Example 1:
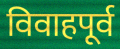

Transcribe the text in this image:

विवाहपूर्व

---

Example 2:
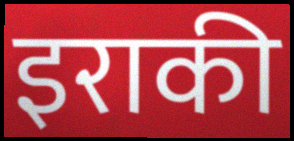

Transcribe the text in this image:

इराकी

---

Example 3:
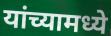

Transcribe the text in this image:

यांच्यामध्ये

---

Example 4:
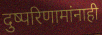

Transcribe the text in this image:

दुष्परिणामांनाही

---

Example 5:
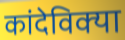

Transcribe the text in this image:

कांदेविक्या